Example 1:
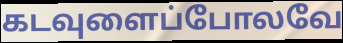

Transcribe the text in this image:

கடவுளைப்போலவே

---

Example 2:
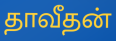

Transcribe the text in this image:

தாவீதன்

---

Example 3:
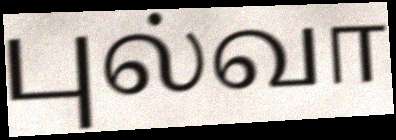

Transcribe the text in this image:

புல்வா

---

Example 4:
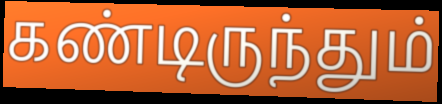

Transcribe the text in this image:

கண்டிருந்தும்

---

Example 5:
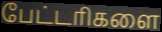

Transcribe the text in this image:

பேட்டரிகளை